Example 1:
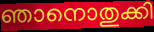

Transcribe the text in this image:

ഞാനൊതുക്കി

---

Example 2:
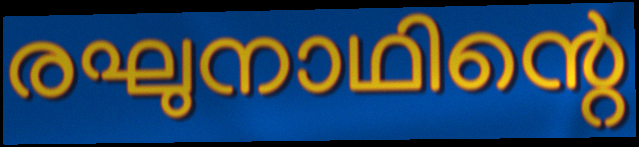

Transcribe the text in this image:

രഘുനാഥിന്റെ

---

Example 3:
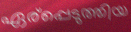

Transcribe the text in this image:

ഏര്പ്പെടുത്തിയ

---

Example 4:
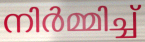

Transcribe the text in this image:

നിർമ്മിച്ച്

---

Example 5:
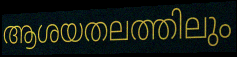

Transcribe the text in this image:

ആശയതലത്തിലും